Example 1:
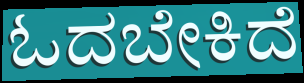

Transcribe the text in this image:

ಓದಬೇಕಿದೆ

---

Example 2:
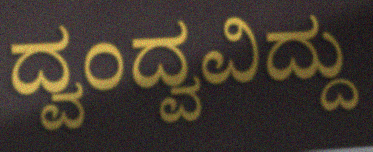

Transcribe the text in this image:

ದ್ವಂದ್ವವಿದ್ದು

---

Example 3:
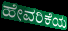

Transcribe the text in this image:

ಹೇವರಿಕೆಯ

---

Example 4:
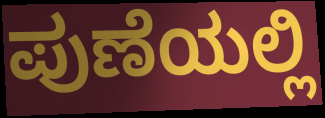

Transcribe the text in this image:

ಪುಣೆಯಲ್ಲಿ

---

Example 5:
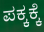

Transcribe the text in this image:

ಪಕ್ಕಕ್ಕೆ